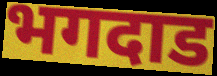
भगदाड